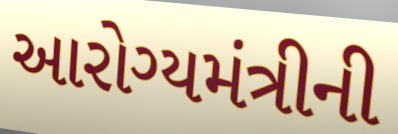
આરોગ્યમંત્રીની